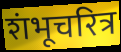
शंभूचरित्र